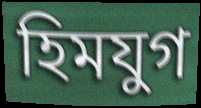
হিমযুগ